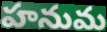
హనుమ